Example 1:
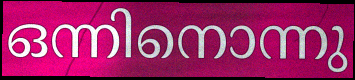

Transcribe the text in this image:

ഒന്നിനൊന്നു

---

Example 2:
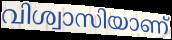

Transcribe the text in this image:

വിശ്വാസിയാണ്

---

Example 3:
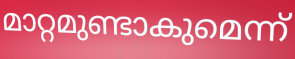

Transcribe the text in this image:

മാറ്റമുണ്ടാകുമെന്ന്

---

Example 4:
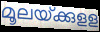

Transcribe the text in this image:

മൂലയ്‌ക്കുളള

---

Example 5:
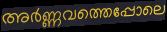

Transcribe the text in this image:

അർണ്ണവത്തെപ്പോലെ